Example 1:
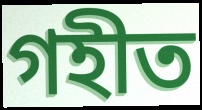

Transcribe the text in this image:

গহীত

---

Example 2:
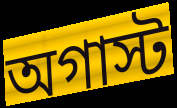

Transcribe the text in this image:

অগাস্ট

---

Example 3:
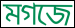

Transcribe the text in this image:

মগজে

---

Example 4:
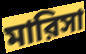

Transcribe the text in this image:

মারিসা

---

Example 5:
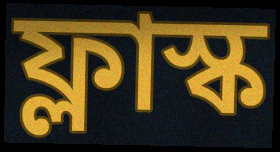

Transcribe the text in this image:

ফ্লাস্ক